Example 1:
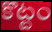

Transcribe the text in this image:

కొట్టం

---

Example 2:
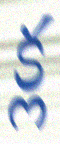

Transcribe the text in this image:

క్ల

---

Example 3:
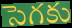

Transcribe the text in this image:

సెగకు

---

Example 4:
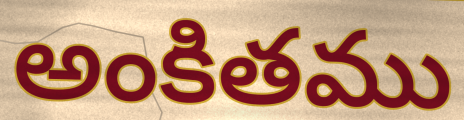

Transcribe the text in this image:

అంకితము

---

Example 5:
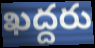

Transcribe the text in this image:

ఖద్దరు